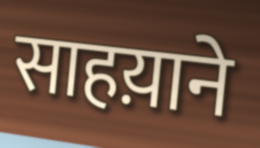
साहय़ाने